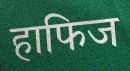
हाफिज